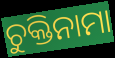
ଚୁକ୍ତିନାମା